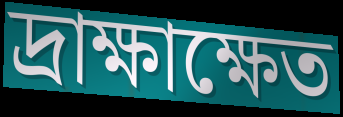
দ্রাক্ষাক্ষেত